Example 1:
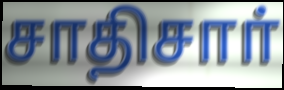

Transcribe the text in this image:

சாதிசார்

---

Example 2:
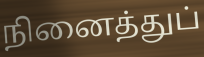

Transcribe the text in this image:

நினைத்துப்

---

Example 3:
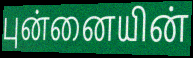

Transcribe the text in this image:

புன்னையின்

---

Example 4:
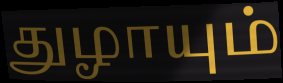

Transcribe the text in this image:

துழாயும்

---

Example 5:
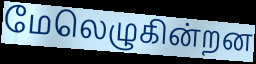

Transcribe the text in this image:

மேலெழுகின்றன